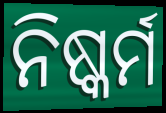
ନିଷ୍କର୍ମ